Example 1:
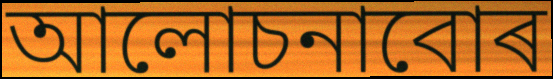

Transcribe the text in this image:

আলোচনাবোৰ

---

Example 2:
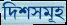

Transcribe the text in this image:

দিশসমূহ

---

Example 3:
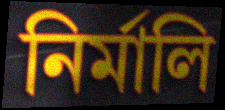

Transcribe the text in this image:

নিৰ্মালি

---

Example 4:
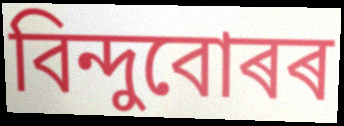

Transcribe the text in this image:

বিন্দুবোৰৰ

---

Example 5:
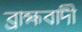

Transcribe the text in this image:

ব্ৰাহ্মবাদী